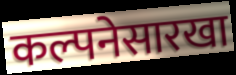
कल्पनेसारखा